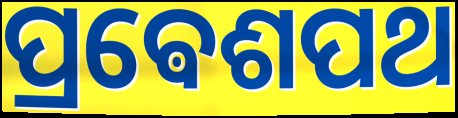
ପ୍ରଵେଶପଥ